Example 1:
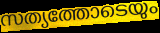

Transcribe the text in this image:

സത്യത്തോടെയും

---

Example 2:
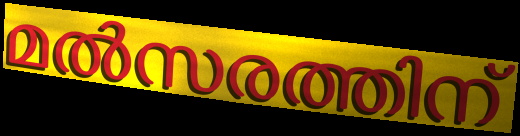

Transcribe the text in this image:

മൽസരത്തിന്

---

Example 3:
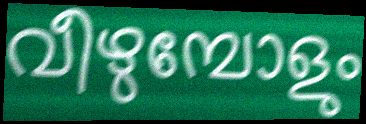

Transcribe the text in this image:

വീഴുമ്പോളും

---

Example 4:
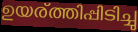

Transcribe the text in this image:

ഉയര്ത്തിപ്പിടിച്ചു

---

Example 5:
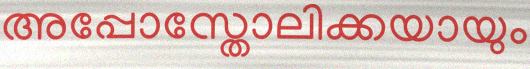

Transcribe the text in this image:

അപ്പോസ്തോലിക്കയായും